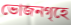
ভোজনগৃহে